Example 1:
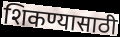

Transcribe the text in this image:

शिकण्यासाठी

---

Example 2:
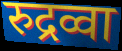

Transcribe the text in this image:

रुद्रव्वा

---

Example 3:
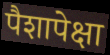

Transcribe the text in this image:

पैशापेक्षा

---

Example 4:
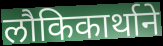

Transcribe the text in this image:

लौकिकार्थाने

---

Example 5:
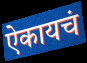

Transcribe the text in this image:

ऐकायचं